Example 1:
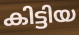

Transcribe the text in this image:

കിട്ടിയ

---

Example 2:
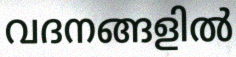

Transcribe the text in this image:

വദനങ്ങളിൽ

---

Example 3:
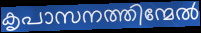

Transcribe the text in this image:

കൃപാസനത്തിന്മേൽ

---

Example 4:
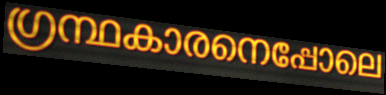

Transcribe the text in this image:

ഗ്രന്ഥകാരനെപ്പോലെ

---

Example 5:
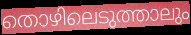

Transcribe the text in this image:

തൊഴിലെടുത്താലും